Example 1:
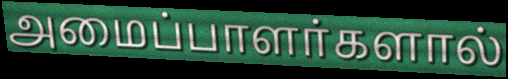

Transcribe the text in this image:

அமைப்பாளர்களால்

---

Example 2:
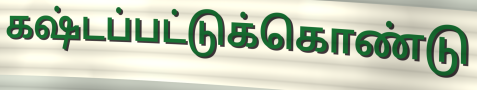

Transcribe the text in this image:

கஷ்டப்பட்டுக்கொண்டு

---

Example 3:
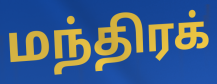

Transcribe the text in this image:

மந்திரக்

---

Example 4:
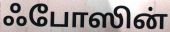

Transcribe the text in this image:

ஃபோஸின்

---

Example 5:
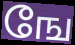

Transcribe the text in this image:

ஙே